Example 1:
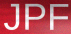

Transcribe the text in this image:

JPF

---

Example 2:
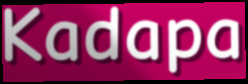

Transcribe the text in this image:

Kadapa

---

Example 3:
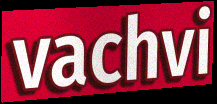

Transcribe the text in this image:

vachvi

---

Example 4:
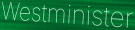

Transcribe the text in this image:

Westminister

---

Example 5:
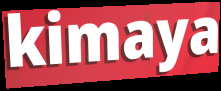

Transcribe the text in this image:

kimaya